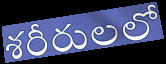
శరీరులలో